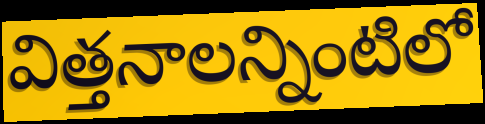
విత్తనాలన్నింటిలో